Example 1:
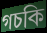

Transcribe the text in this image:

গচকি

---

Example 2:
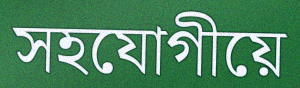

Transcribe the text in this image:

সহযোগীয়ে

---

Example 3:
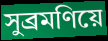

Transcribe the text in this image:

সুব্ৰমণিয়ে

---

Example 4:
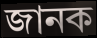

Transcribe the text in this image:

জানক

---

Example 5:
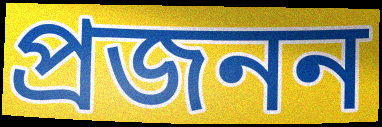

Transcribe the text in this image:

প্ৰজনন